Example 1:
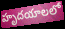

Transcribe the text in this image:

హృదయాలలో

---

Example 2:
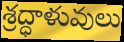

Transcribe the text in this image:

శ్రద్ధాళువులు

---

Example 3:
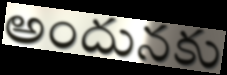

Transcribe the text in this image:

అందునకు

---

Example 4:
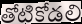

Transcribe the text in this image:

తోటికోడలి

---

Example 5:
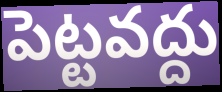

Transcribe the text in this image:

పెట్టవద్దు